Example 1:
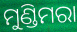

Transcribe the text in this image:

ମୁଣ୍ଡିମରା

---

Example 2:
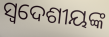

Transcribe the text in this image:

ସ୍ଵଦେଶୀୟଙ୍କ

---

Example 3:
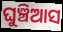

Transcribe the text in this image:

ଘୁଞ୍ଚିଆସ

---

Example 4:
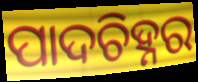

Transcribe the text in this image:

ପାଦଚିହ୍ନର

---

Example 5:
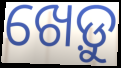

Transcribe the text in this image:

ଖେଡ଼ୁ